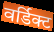
वर्डिक्ट